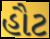
હૌટ